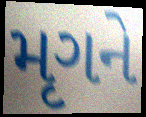
મૃગને